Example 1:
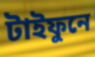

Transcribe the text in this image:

টাইফুনে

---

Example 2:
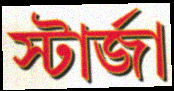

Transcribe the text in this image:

স্টার্জা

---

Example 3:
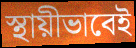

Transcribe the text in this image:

স্থায়ীভাবেই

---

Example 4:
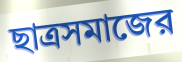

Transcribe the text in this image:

ছাত্রসমাজের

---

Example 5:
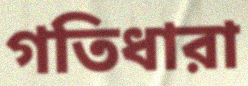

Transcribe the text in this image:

গতিধারা